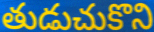
తుడుచుకొని